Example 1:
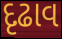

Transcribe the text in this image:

દૃઢાવ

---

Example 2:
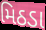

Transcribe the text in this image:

મિઠડા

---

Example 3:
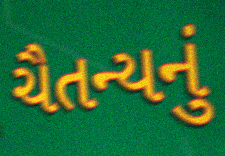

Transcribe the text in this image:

ચૈતન્યનું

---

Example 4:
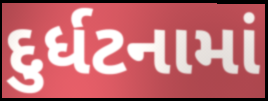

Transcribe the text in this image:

દુર્ધટનામાં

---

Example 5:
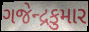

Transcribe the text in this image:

ગજેન્દ્રકુમાર